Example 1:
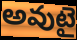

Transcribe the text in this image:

అవుటై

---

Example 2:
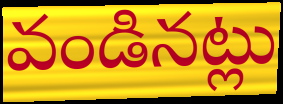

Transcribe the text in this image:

వండినట్లు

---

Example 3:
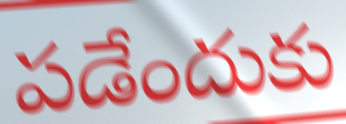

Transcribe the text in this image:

పడేందుకు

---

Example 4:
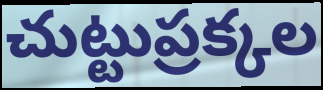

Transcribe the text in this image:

చుట్టుప్రక్కల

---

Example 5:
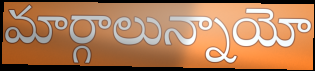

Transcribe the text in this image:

మార్గాలున్నాయో